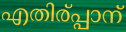
എതിര്പ്പാന്